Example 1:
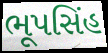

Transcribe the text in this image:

ભૂપસિંહ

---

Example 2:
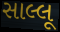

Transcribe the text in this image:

સાલ્લૂ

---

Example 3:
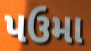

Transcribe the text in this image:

પઉમા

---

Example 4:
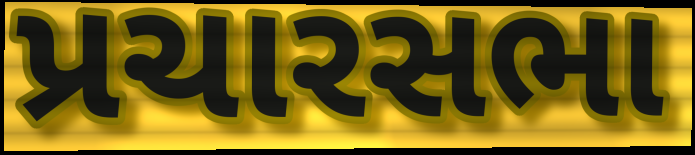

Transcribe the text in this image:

પ્રચારસભા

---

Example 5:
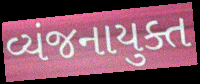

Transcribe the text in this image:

વ્યંજનાયુક્ત